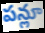
పన్లూ